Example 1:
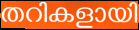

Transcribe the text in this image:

തറികളായി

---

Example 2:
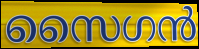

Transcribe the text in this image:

സൈഗൻ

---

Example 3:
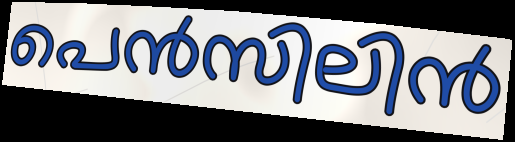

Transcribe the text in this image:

പെൻസിലിൻ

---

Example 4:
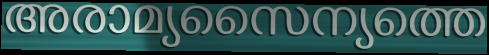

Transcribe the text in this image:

അരാമ്യസൈന്യത്തെ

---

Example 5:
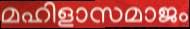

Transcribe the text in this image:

മഹിളാസമാജം